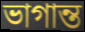
ভাগান্ত